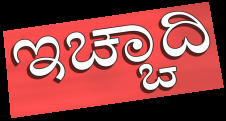
ಇಚ್ಚಾದಿ